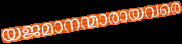
യജമാനന്മാരായവരെ